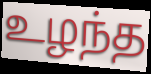
உழந்த